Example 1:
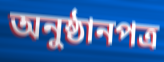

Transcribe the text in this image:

অনুষ্ঠানপত্র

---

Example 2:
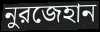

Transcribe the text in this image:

নুরজেহান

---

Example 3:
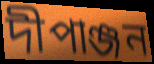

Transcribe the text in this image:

দীপাঞ্জন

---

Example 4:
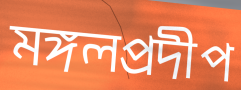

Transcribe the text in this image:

মঙ্গলপ্রদীপ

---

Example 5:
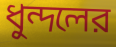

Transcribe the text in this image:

ধুন্দলের